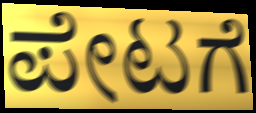
ಪೇಟಗೆ